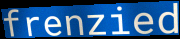
frenzied